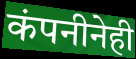
कंपनीनेही